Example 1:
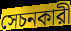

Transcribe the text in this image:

সেচনকারী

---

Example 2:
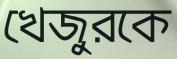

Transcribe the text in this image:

খেজুরকে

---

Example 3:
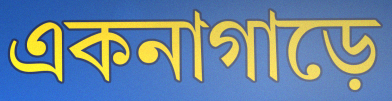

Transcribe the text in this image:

একনাগাড়ে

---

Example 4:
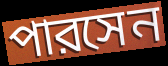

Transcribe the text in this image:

পারসেন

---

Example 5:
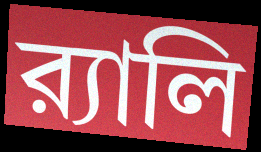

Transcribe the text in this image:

র‍্যালি